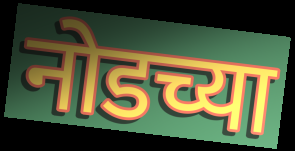
नोडच्या